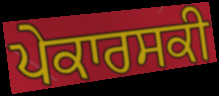
ਪੇਕਾਰਸਕੀ